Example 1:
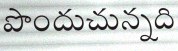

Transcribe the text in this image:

పొందుచున్నది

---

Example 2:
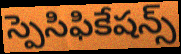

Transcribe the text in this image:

స్పెసిఫికేషన్స్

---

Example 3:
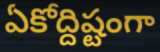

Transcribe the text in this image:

ఏకోద్దిష్టంగా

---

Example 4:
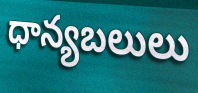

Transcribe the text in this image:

ధాన్యబలులు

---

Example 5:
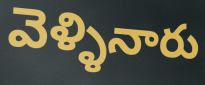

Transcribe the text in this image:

వెళ్ళినారు